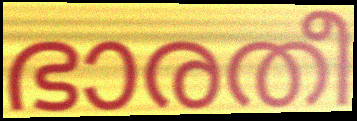
ഭാരതീ